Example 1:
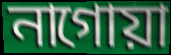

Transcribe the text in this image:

নাগোয়া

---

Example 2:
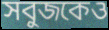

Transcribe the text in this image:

সবুজকেও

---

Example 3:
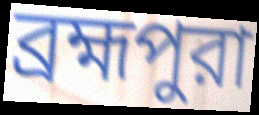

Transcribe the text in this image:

ব্রহ্মপুরা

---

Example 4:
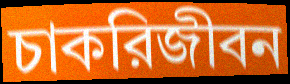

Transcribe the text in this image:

চাকরিজীবন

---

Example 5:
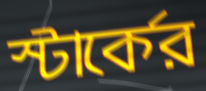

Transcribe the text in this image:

স্টার্কের